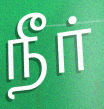
நீர்